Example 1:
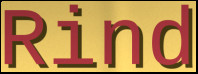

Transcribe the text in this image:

Rind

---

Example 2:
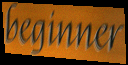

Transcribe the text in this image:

beginner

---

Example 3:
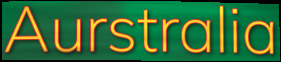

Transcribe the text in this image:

Aurstralia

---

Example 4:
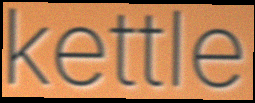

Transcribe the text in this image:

kettle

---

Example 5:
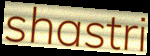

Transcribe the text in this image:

shastri